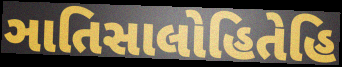
ઞાતિસાલોહિતેહિ